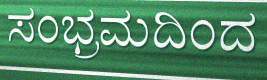
ಸಂಭ್ರಮದಿಂದ